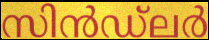
സിൻഡ്ലർ